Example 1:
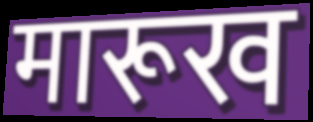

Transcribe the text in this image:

मारूख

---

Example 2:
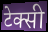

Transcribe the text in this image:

टेक्सी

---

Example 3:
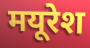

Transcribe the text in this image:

मयूरेश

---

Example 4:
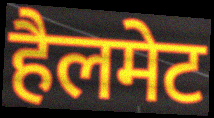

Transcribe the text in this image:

हैलमेट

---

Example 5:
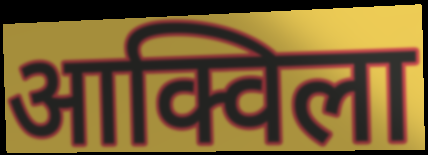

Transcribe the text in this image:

आक्विला